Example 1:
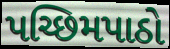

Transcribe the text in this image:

પચ્છિમપાઠો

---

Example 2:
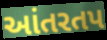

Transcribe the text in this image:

આંતરતપ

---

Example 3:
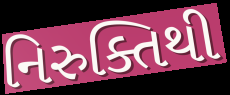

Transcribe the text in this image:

નિરુક્તિથી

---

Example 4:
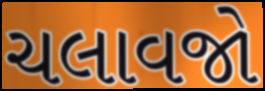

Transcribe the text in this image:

ચલાવજો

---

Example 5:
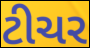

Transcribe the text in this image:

ટીચર